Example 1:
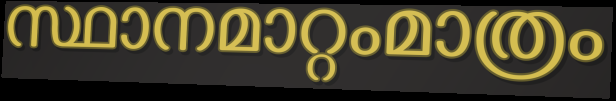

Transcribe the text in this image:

സ്ഥാനമാറ്റംമാത്രം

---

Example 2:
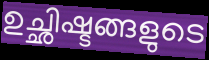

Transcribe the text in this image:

ഉച്ഛിഷ്ടങ്ങളുടെ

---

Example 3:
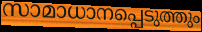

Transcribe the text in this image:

സാമാധാനപ്പെടുത്തും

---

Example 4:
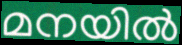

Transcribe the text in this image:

മനയിൽ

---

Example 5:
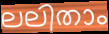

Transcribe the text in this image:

ലലിതാം